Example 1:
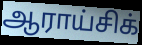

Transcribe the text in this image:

ஆராய்சிக்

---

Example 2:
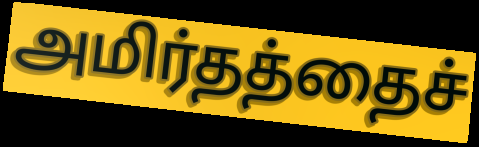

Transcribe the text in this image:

அமிர்தத்தைச்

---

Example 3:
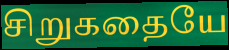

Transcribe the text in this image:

சிறுகதையே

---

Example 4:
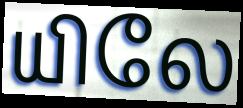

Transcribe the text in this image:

யிலே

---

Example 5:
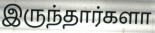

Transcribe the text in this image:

இருந்தார்களா